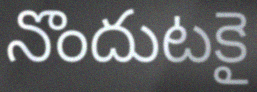
నొందుటకై